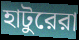
হাটুরেরা